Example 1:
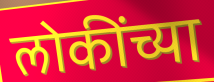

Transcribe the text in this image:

लोकींच्या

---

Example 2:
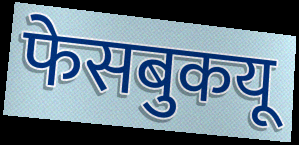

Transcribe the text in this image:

फेसबुकयू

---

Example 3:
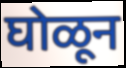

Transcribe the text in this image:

घोळून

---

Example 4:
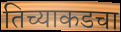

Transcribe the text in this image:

तिच्याकडचा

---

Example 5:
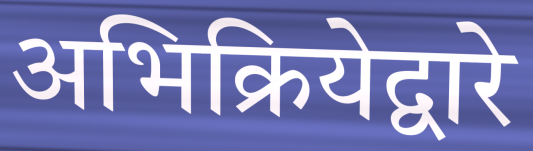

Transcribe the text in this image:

अभिक्रियेद्वारे